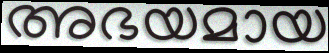
അഭയമായ